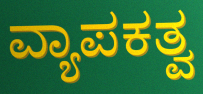
ವ್ಯಾಪಕತ್ವ